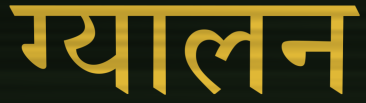
ग्यालन